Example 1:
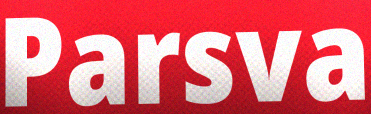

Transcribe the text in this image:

Parsva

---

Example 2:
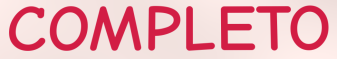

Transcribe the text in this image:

COMPLETO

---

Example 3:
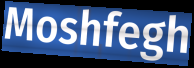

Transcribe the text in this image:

Moshfegh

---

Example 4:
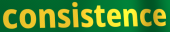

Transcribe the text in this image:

consistence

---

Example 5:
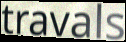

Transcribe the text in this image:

travals